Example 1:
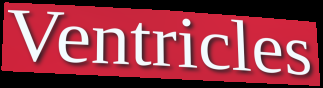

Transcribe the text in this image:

Ventricles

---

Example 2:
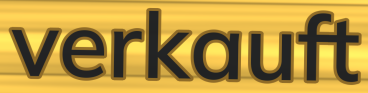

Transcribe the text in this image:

verkauft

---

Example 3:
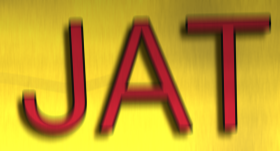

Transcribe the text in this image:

JAT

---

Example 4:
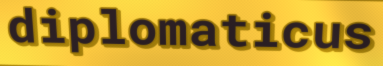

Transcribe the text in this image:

diplomaticus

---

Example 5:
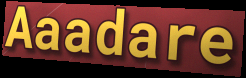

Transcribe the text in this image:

Aaadare